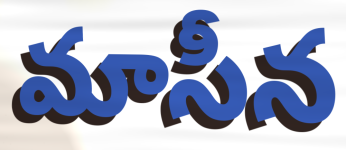
మాసీన